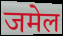
जमेल